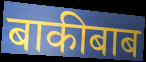
बाकीबाब